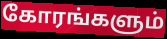
கோரங்களும்